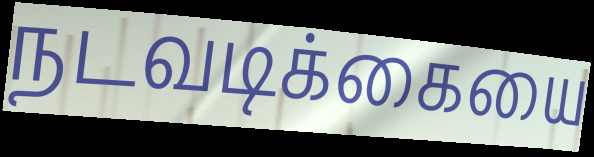
நடவடிக்கையை